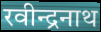
रवीन्‍द्रनाथ